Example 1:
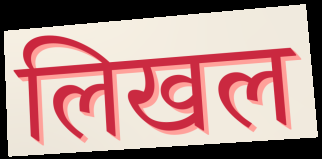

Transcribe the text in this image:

लिखल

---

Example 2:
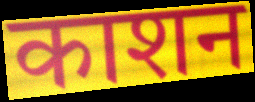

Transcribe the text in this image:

काशन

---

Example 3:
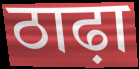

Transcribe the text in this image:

ठाढ़ा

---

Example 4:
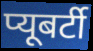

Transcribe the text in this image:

प्‍यूबर्टी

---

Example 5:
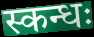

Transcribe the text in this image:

स्कन्धः